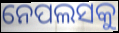
ନେପଲସକୁ